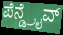
ಪೆನ್ಡ್ರೈವ್